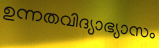
ഉന്നതവിദ്യാഭ്യാസം